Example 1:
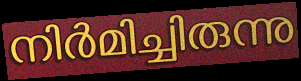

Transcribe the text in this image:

നിർമിച്ചിരുന്നു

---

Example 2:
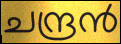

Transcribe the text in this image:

ചന്ദ്രൻ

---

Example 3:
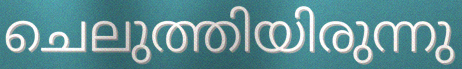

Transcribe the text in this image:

ചെലുത്തിയിരുന്നു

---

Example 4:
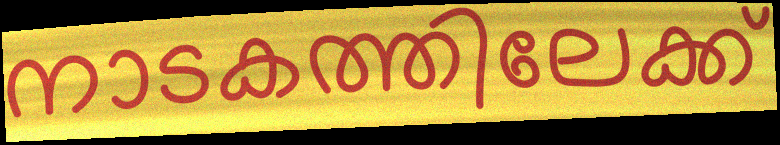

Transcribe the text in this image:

നാടകത്തിലേക്ക്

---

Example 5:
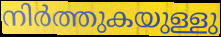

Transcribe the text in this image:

നിർത്തുകയുള്ളു